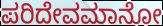
ಪರಿದೇವಮಾನೋ